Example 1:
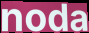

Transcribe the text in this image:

noda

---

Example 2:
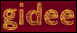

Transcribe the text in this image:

gidee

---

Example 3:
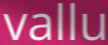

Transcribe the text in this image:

vallu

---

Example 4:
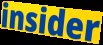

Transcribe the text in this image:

insider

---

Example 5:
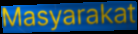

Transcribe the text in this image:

Masyarakat